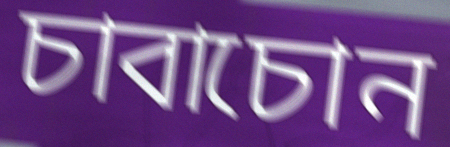
চাবাচোন